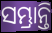
ସମ୍ଭ୍ରାନ୍ତି